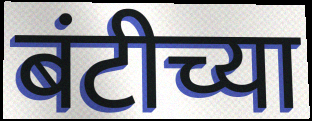
बंटीच्या